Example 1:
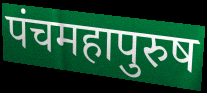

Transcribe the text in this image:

पंचमहापुरुष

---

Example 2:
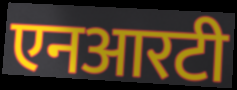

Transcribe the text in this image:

एनआरटी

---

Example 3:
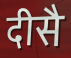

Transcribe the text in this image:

दीसै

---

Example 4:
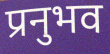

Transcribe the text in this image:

प्रनुभव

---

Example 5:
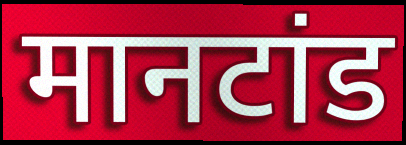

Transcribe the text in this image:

मानटांड